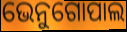
ଭେନୁଗୋପାଲ